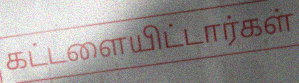
கட்டளையிட்டார்கள்